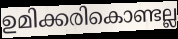
ഉമിക്കരികൊണ്ടല്ല